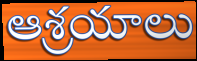
ఆశ్రయాలు